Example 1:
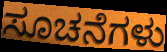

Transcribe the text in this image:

ಸೂಚನೆಗಳು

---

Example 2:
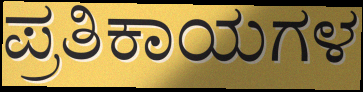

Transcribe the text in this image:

ಪ್ರತಿಕಾಯಗಳ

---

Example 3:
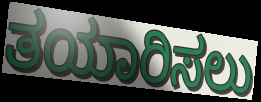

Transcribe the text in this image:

ತಯಾರಿಸಲು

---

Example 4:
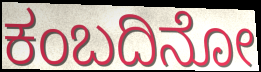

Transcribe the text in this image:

ಕಂಬದಿನೋ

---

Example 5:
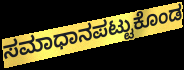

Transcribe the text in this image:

ಸಮಾಧಾನಪಟ್ಟುಕೊಂಡ